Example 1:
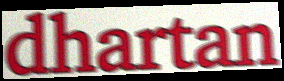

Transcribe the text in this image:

dhartan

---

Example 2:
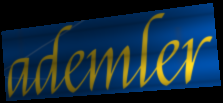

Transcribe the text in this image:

ademler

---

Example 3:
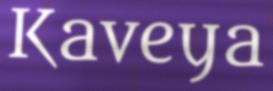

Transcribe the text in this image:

Kaveya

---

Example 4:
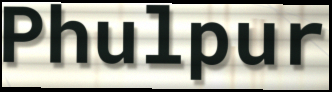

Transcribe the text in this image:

Phulpur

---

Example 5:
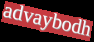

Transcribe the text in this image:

advaybodh